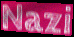
Nazi